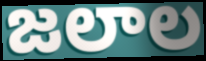
జలాల